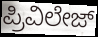
ಪ್ರಿವಿಲೇಜ್